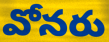
వోనరు